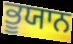
ਭੂਯਾਨ